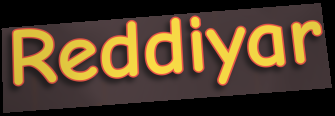
Reddiyar